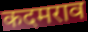
कदमराव